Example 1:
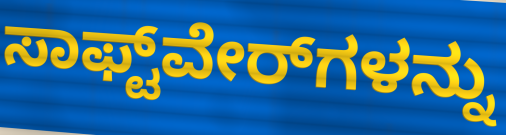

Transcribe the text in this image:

ಸಾಫ್ಟ್‌ವೇರ್‌ಗಳನ್ನು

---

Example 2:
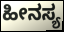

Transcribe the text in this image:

ಹೀನಸ್ಯ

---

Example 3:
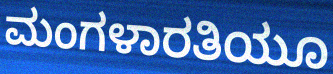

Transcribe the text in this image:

ಮಂಗಳಾರತಿಯೂ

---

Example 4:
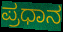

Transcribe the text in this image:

ಪ್ರಧಾನ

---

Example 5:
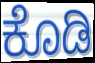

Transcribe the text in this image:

ಕೊಡಿ